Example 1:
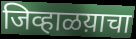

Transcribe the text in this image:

जिव्हाळय़ाचा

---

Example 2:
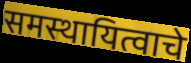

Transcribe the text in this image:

समस्थायित्वाचे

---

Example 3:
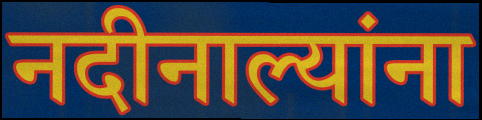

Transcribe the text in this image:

नदीनाल्यांना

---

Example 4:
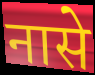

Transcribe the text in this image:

नासे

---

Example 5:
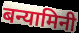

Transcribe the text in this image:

बन्यामिनी